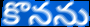
కొనను